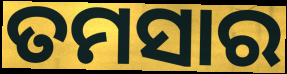
ତମସାର